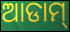
ଆଡାମ୍